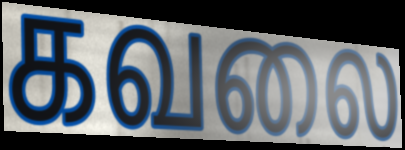
கவலை